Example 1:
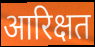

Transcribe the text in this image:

आरिक्षत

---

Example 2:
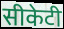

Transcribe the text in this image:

सीकेटी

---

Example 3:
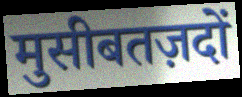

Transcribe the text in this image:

मुसीबतज़दों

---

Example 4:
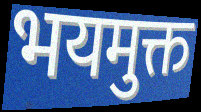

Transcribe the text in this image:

भयमुक्त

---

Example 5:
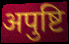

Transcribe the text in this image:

अपुष्टि